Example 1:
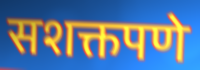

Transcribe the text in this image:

सशक्तपणे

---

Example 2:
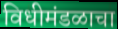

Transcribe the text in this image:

विधीमंडळाचा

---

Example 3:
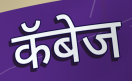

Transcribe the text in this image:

कॅबेज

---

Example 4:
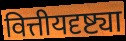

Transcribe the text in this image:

वित्तीयदृष्ट्या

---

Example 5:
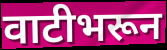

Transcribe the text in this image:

वाटीभरून